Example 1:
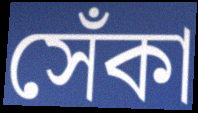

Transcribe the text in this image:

সেঁকা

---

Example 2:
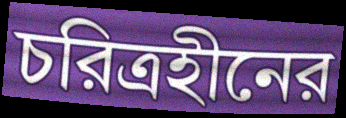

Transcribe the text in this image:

চরিত্রহীনের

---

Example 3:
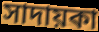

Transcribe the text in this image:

সাদায়কা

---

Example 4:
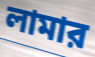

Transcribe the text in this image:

লামার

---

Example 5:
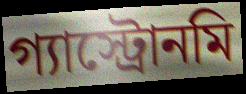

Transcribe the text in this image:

গ্যাস্ট্রোনমি